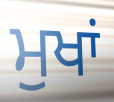
ਮੁਖਾਂ